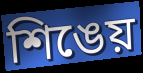
শিঙেয়